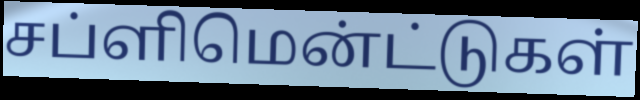
சப்ளிமென்ட்டுகள்